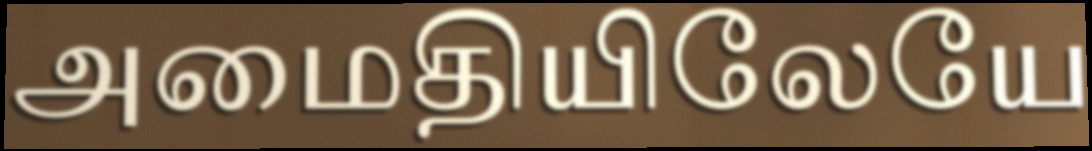
அமைதியிலேயே